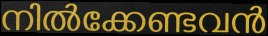
നിൽക്കേണ്ടവൻ